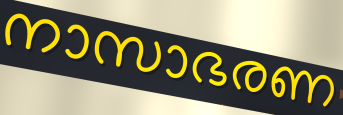
നാസാഭരണ